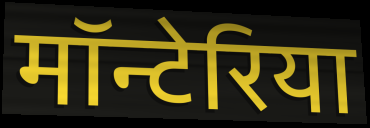
मॉन्टेरिया